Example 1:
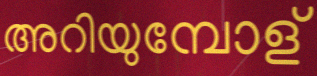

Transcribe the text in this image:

അറിയുമ്പോള്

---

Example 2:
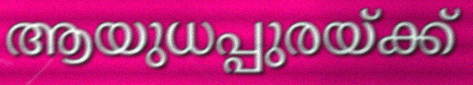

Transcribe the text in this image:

ആയുധപ്പുരയ്ക്ക്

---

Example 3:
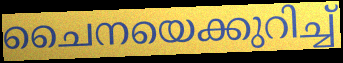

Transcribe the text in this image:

ചൈനയെക്കുറിച്ച്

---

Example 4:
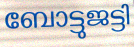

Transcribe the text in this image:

ബോട്ടുജട്ടി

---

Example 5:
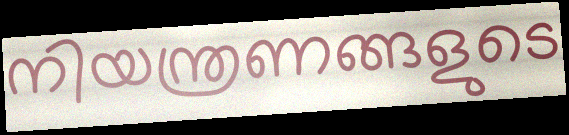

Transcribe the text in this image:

നിയന്ത്രണങ്ങളുടെ